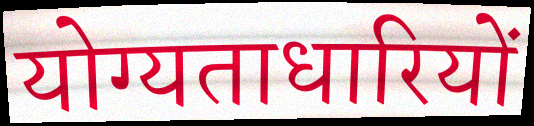
योग्यताधारियों